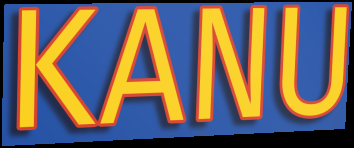
KANU